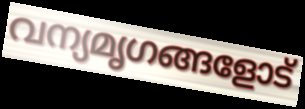
വന്യമൃഗങ്ങളോട്